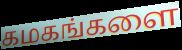
கமகங்களை